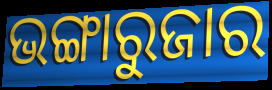
ଭଙ୍ଗାରୁଜାର